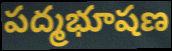
పద్మభూషణ